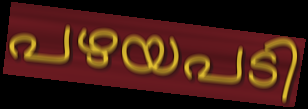
പഴയപടി